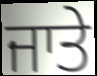
ਜਾਤੇ